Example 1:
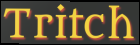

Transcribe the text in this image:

Tritch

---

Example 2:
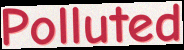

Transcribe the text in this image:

Polluted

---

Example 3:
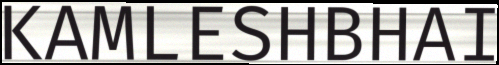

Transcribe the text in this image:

KAMLESHBHAI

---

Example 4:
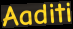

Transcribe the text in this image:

Aaditi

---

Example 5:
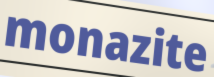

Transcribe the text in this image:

monazite